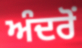
ਅੰਦਰੋਂ